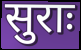
सुराः